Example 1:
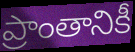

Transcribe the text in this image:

ప్రాంతానికీ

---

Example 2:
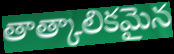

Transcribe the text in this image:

తాత్కాలికమైన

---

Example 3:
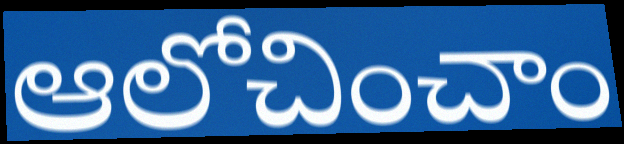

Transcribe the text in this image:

ఆలోచించాం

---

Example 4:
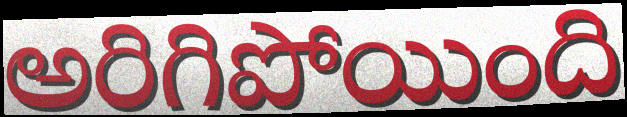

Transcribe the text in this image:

అరిగిపోయింది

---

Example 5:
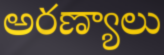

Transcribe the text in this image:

అరణ్యాలు